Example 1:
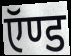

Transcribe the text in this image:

ऍण्ड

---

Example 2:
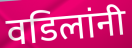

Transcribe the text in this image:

वडिलांनी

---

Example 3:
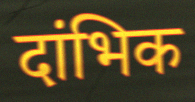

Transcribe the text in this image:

दांभिक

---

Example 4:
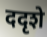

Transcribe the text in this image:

ददृशे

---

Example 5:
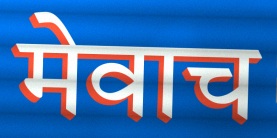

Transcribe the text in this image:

मेवाच